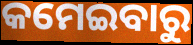
କମେଇବାରୁ